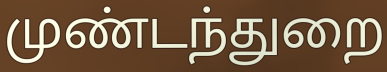
முண்டந்துறை